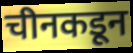
चीनकडून